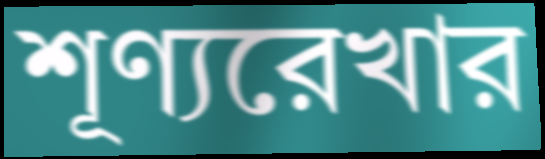
শূণ্যরেখার